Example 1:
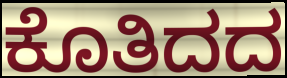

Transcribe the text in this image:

ಕೊತಿದದ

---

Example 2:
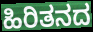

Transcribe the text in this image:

ಹಿರಿತನದ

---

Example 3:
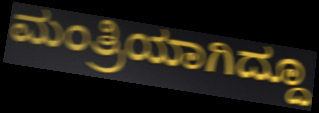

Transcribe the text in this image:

ಮಂತ್ರಿಯಾಗಿದ್ದೂ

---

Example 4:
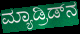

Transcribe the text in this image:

ಮ್ಯಾಡ್ರಿಡ್‌ನ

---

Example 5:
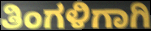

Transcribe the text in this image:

ತಿಂಗಳಿಗಾಗಿ